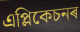
এপ্লিকেচনৰ